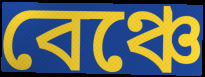
বেঞ্চে